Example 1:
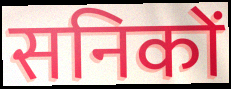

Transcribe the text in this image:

सनिकों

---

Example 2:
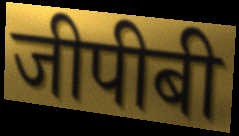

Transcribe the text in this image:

जीपीबी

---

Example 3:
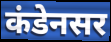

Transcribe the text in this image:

कंडेनसर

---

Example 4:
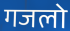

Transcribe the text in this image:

गजलो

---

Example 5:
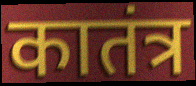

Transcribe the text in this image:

कातंत्र